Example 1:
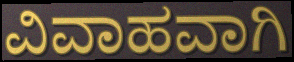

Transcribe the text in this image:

ವಿವಾಹವಾಗಿ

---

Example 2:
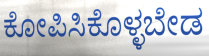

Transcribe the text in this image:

ಕೋಪಿಸಿಕೊಳ್ಳಬೇಡ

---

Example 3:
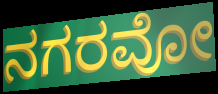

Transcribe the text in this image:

ನಗರವೋ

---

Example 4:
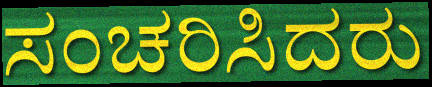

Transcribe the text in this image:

ಸಂಚರಿಸಿದರು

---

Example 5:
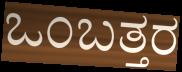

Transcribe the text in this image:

ಒಂಬತ್ತರ